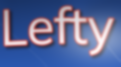
Lefty